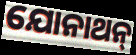
ଯୋନାଥନ୍